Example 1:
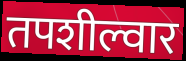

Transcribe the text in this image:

तपशील्वार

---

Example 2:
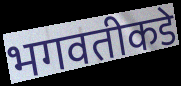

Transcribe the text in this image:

भगवतीकडे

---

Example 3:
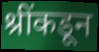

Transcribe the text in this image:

श्रींकडून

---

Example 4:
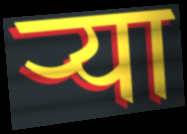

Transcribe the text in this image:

ऱ्या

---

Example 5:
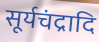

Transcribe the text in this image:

सूर्यचंद्रादि